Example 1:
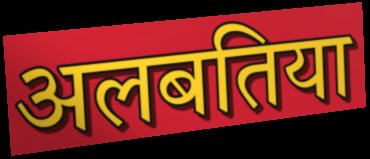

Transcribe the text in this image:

अलबतिया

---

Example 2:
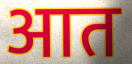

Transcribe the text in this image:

आत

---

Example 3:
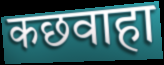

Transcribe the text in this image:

कछवाहा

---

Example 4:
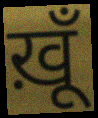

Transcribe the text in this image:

ख़ूँ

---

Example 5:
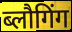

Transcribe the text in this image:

ब्लौगिंग